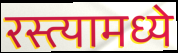
रस्त्यामध्ये